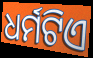
ଧର୍ମଟିଏ